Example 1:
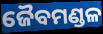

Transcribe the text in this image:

ଜୈବମଣ୍ଡଳ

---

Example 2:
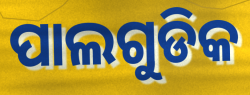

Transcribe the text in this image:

ପାଲଗୁଡିକ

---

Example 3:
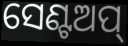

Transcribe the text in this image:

ସେଣ୍ଟଅପ୍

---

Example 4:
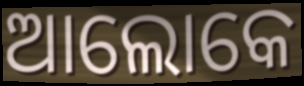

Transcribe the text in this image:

ଆଲୋକେ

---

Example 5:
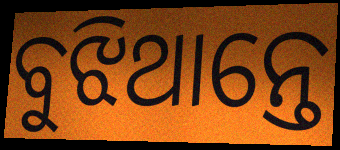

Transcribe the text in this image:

ବୁଝିଥାନ୍ତେ